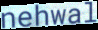
nehwal